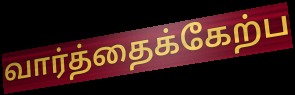
வார்த்தைக்கேற்ப